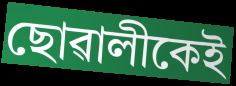
ছোৱালীকেই